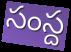
సంస్ద